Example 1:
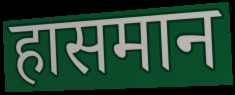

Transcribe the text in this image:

हासमान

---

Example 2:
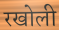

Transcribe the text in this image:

रखोली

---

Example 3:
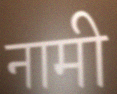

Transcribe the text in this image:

नामी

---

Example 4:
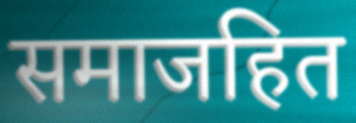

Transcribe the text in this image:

समाजहित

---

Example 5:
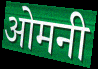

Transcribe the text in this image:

ओमनी